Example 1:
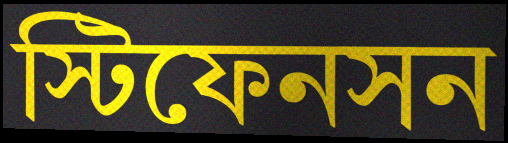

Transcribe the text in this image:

স্টিফেনসন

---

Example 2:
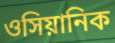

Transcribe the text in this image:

ওসিয়ানিক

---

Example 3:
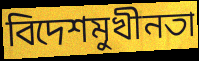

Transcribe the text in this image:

বিদেশমুখীনতা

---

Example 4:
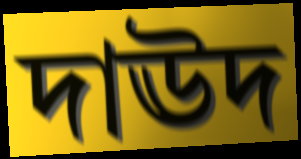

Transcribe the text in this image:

দাঊদ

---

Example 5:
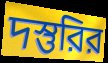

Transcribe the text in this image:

দস্তুরির